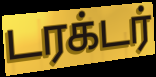
டரக்டர்